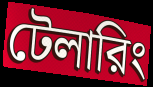
টেলারিং